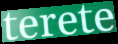
terete